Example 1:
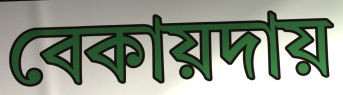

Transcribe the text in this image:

বেকায়দায়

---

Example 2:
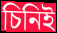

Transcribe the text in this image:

চিনিই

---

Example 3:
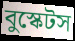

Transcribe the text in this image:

বুস্কেটস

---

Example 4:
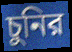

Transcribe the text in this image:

চুনির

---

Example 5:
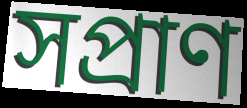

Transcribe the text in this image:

সপ্রাণ